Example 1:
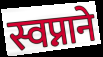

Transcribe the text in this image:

स्वप्नाने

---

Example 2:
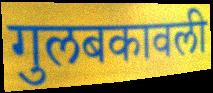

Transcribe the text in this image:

गुलबकावली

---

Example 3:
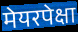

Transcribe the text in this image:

मेयरपेक्षा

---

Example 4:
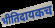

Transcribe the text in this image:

भीतिदायकच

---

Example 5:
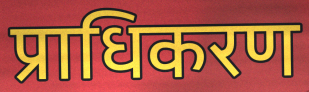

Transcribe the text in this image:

प्राधिकरण